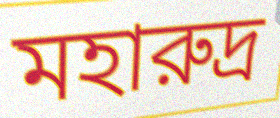
মহারুদ্র